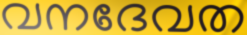
വനദേവത